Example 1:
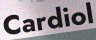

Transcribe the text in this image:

Cardiol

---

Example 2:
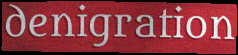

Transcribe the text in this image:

denigration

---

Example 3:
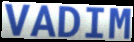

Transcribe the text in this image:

VADIM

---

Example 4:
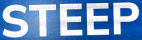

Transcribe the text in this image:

STEEP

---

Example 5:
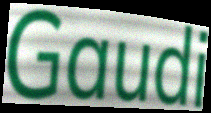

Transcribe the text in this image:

Gaudi